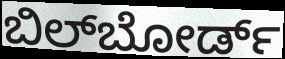
ಬಿಲ್‌ಬೋರ್ಡ್